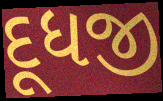
દૂધજી